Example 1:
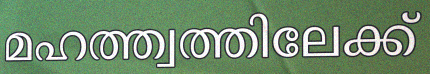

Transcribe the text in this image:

മഹത്ത്വത്തിലേക്ക്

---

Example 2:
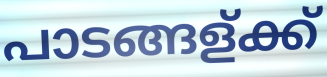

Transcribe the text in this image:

പാടങ്ങള്ക്ക്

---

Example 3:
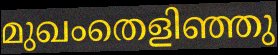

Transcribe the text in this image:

മുഖംതെളിഞ്ഞു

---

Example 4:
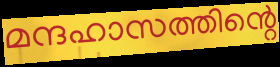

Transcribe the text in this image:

മന്ദഹാസത്തിന്റെ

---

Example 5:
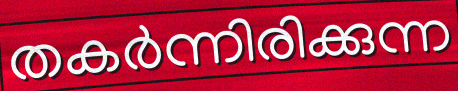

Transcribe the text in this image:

തകർന്നിരിക്കുന്ന